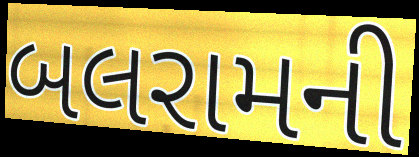
બલરામની